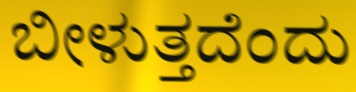
ಬೀಳುತ್ತದೆಂದು